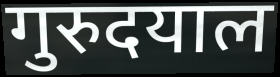
गुरुदयाल